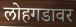
लोहगडावर